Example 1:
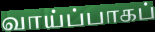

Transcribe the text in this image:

வாய்ப்பாகப்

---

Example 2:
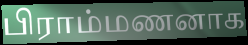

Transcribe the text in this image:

பிராம்மணனாக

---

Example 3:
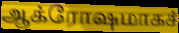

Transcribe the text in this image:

ஆக்ரோஷமாகச்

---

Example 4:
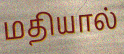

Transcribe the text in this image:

மதியால்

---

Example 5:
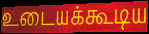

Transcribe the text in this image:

உடையக்கூடிய